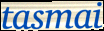
tasmai